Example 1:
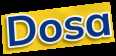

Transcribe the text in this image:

Dosa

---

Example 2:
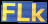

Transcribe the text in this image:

FLk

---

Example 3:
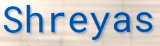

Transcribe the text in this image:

Shreyas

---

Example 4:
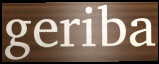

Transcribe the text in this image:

geriba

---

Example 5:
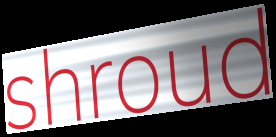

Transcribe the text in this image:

shroud